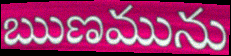
ఋణమును